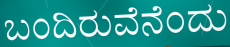
ಬಂದಿರುವೆನೆಂದು